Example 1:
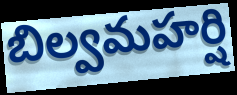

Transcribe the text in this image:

బిల్వమహర్షి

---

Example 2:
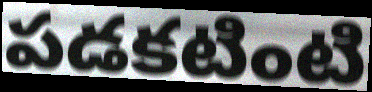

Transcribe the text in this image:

పడకటింటి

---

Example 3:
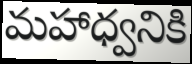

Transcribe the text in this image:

మహాధ్వనికి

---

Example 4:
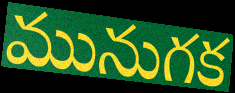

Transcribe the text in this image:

మునుగక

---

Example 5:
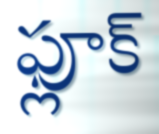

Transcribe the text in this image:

ఫ్లూక్